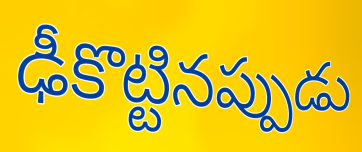
ఢీకొట్టినప్పుడు